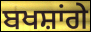
ਬਖਸ਼ਾਂਗੇ